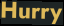
Hurry